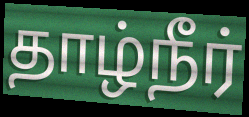
தாழ்நீர்